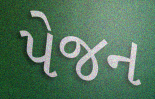
પેજન